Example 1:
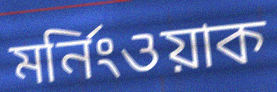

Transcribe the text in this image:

মর্নিংওয়াক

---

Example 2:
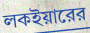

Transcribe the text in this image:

লকইয়ারের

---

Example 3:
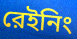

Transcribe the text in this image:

রেইনিং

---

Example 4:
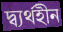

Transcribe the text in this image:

দ্ব্যর্থহীন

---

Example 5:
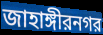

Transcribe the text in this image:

জাহাঙ্গীরনগর